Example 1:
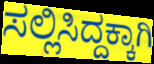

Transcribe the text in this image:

ಸಲ್ಲಿಸಿದ್ದಕ್ಕಾಗಿ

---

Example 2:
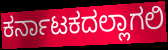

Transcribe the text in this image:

ಕರ್ನಾಟಕದಲ್ಲಾಗಲಿ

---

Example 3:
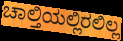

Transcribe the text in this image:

ಚಾಲ್ತಿಯಲ್ಲಿರಲಿಲ್ಲ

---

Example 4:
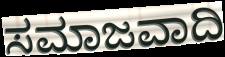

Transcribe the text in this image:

ಸಮಾಜವಾದಿ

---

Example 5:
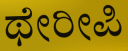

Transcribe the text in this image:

ಥೇರೀಪಿ